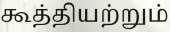
கூத்தியற்றும்